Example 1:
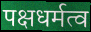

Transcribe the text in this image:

पक्षधर्मत्व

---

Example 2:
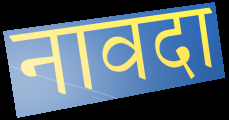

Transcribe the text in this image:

नावदा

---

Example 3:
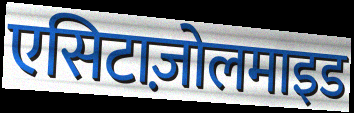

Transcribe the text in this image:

एसिटाज़ोलमाइड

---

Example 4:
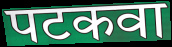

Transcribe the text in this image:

पटकवा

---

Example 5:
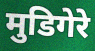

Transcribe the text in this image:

मुडिगेरे